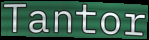
Tantor